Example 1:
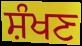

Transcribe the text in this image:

ਸ਼ੰਖਣ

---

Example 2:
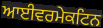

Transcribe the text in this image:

ਆਈਵਰਮੇਕਟਿਨ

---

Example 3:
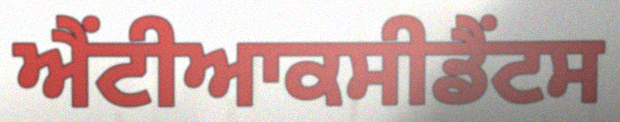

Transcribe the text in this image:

ਐਂਟੀਆਕਸੀਡੈਂਟਸ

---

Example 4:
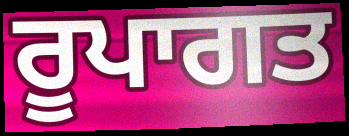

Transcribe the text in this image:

ਰੂਪਾਗਤ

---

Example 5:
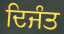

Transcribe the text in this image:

ਦਿਜੰਤ